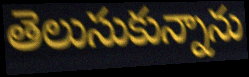
తెలుసుకున్నాను